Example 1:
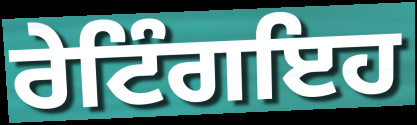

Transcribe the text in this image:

ਰੇਟਿੰਗਇਹ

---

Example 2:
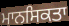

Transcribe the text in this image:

ਮਾਨਸਿਕਤਾ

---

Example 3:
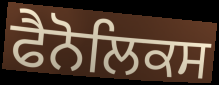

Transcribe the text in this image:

ਫੈਨੋਲਿਕਸ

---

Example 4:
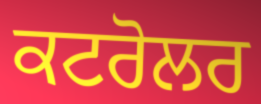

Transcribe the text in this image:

ਕਟਰੋਲਰ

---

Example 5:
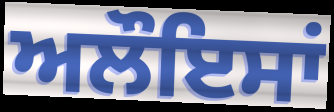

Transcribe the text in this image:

ਅਲੌਇਸਾਂ